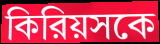
কিরিয়সকে